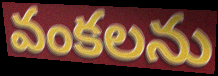
వంకలను